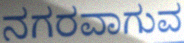
ನಗರವಾಗುವ